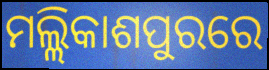
ମଲ୍ଲିକାଶପୁରରେ